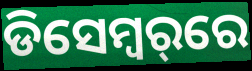
ଡିସେମ୍ବର୍‌ରେ